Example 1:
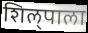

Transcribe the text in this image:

शिल्पाला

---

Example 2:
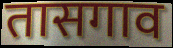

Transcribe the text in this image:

तासगाव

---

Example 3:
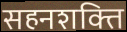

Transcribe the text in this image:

सहनशक्ति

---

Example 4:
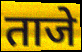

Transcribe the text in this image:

ताजे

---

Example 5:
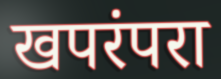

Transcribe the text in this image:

खपरंपरा